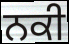
ਨਕੀ